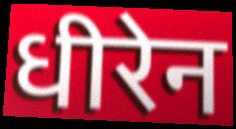
धीरेन